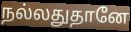
நல்லதுதானே